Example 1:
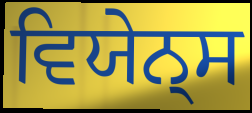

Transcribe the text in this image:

ਵਿਯੇਨ੍ਸ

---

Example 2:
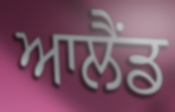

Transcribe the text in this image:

ਆਲੈਂਡ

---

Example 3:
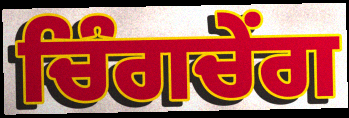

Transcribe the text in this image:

ਚਿੰਗਚੇਂਗ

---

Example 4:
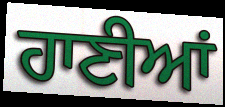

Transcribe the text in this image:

ਹਾਣੀਆਂ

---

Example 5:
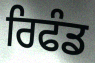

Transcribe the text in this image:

ਰਿਫੰਡ